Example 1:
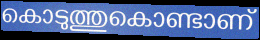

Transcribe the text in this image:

കൊടുത്തുകൊണ്ടാണ്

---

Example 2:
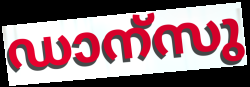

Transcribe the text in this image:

ഡാന്സു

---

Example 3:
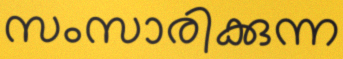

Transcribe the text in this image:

സംസാരിക്കുന്ന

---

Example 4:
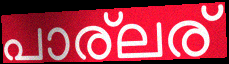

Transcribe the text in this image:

പാര്ലര്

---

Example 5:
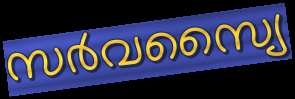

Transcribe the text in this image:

സർവസ്യൈ